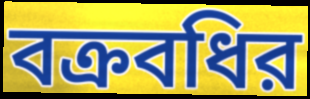
বক্রবধির